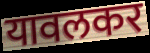
यावलकर